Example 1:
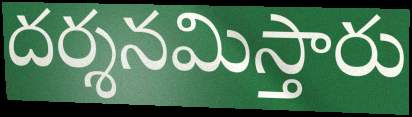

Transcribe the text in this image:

దర్శనమిస్తారు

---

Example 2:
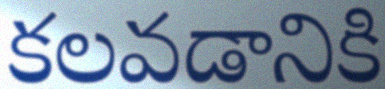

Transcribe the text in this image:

కలవడానికి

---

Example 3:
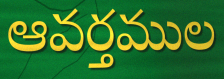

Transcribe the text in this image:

ఆవర్తముల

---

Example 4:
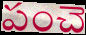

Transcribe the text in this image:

పంచె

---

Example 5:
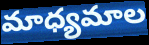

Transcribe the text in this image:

మాధ్యమాల